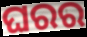
ଘରର